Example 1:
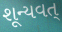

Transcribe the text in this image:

શૂન્યવત્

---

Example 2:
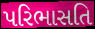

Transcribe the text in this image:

પરિભાસતિ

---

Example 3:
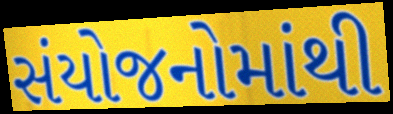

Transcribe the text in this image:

સંયોજનોમાંથી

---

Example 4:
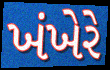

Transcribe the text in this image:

ખંખેરે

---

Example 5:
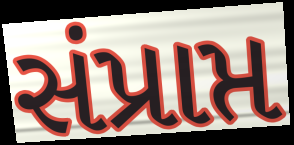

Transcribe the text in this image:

સંપ્રાપ્ત